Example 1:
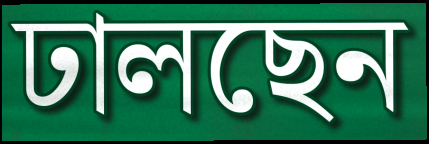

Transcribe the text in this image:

ঢালছেন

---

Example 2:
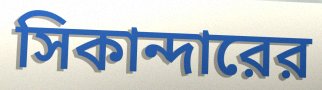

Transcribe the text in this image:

সিকান্দারের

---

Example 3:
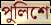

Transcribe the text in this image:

পুলিশে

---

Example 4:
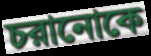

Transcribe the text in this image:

চরানোকে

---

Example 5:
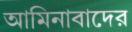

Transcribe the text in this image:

আমিনাবাদের